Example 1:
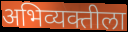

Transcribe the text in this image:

अभिव्यक्तीला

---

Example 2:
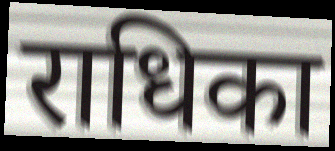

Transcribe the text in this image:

राधिका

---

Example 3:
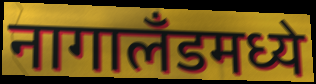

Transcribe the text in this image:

नागालॅंडमध्ये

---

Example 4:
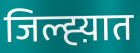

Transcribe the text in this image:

जिल्ह्य़ात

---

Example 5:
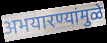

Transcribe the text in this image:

अभयारण्यांमुळे